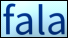
fala